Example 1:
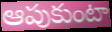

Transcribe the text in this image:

ఆపుకుంటా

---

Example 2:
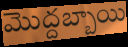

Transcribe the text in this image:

మొద్దబ్బాయి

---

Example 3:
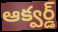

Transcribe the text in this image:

ఆక్వర్డ్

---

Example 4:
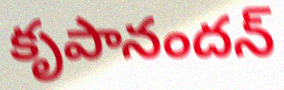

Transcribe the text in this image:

కృపానందన్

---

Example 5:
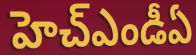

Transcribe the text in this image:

హెచ్ఎండీఏ